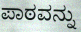
ಪಾಠವನ್ನು